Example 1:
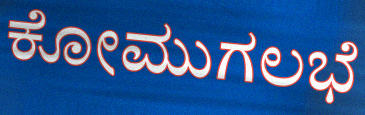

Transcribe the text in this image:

ಕೋಮುಗಲಭೆ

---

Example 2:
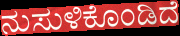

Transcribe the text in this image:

ನುಸುಳಿಕೊಂಡಿದೆ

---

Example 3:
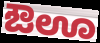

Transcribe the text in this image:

ಔಊ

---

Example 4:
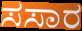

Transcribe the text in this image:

ಸಸಾರ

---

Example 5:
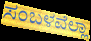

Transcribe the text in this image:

ಸಂಬಳವೆಲ್ಲಾ